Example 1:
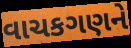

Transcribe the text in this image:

વાચકગણને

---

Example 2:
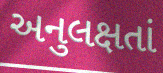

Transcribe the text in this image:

અનુલક્ષતાં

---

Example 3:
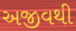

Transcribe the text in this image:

અજીવથી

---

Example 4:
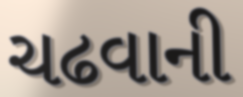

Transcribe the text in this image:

ચઢવાની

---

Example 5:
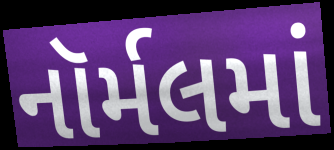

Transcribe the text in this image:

નૉર્મલમાં